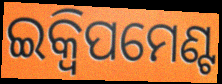
ଇକ୍ୱିପମେଣ୍ଟ